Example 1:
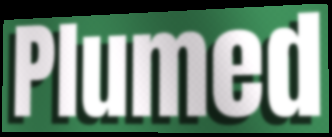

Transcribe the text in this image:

Plumed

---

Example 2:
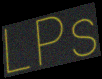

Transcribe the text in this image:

LPs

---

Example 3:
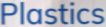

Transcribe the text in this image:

Plastics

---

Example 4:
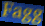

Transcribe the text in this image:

Fagg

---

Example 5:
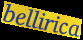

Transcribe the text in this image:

bellirica